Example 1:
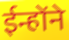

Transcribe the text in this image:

ईन्होंने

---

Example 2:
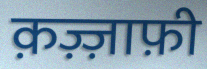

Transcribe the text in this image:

क़ज़्ज़ाफ़ी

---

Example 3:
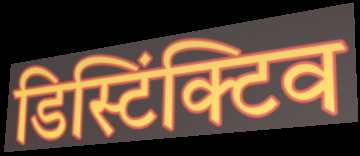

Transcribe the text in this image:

डिस्टिंक्टिव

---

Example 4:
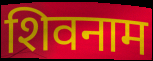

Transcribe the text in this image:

शिवनाम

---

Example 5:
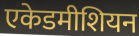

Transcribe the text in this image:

एकेडमीशियन